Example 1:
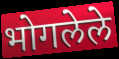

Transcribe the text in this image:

भोगलेले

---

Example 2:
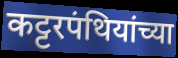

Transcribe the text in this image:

कट्टरपंथियांच्या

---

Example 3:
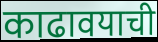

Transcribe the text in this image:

काढावयाची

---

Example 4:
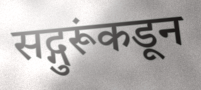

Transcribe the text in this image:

सद्गुरूंकडून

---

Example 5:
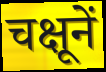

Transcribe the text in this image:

चक्षूनें